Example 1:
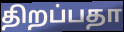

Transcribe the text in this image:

திறப்பதா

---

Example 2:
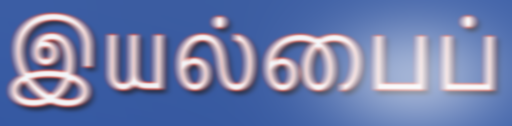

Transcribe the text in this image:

இயல்பைப்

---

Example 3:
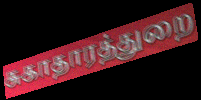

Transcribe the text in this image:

சுகாதாரத்துறை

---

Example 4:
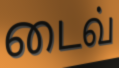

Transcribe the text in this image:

டைவ்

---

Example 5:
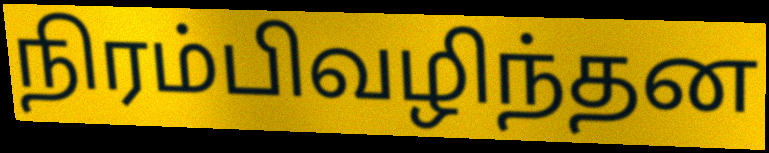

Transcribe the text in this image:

நிரம்பிவழிந்தன